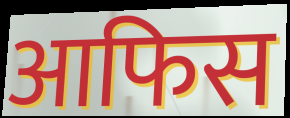
आफिस